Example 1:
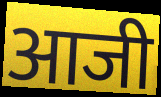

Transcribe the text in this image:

आजी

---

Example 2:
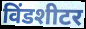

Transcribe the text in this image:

विंडशीटर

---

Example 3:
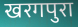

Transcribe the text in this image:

खरगपुरा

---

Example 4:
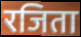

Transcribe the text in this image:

रजिता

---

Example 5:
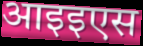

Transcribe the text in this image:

आइइएस